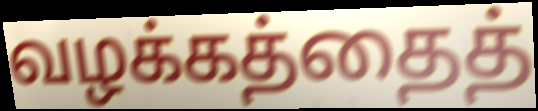
வழக்கத்தைத்